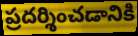
ప్రదర్శించడానికి